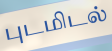
புடமிடல்